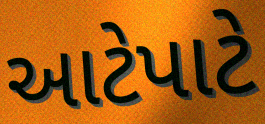
આટેપાટે